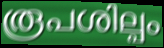
രൂപശില്പം